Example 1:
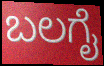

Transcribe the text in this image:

ಬಲಗೈ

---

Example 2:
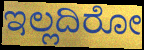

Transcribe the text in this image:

ಇಲ್ಲದಿರೋ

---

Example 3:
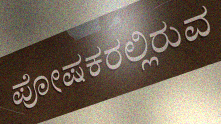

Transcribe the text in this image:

ಪೋಷಕರಲ್ಲಿರುವ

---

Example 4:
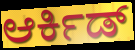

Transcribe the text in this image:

ಆರ್ಕಿಡ್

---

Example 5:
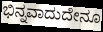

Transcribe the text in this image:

ಭಿನ್ನವಾದುದೇನೂ